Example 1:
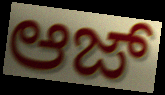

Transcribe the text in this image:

ಆಜ್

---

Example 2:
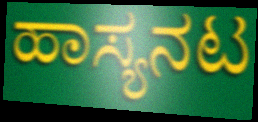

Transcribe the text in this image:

ಹಾಸ್ಯನಟ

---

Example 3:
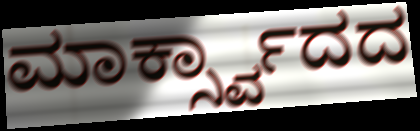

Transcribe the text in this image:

ಮಾರ್ಕ್ಸ್ವಾದದ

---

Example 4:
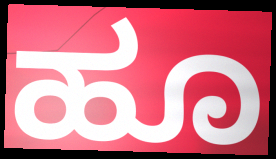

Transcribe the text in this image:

ಹೂ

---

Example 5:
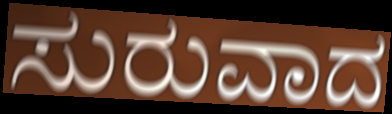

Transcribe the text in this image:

ಸುರುವಾದ